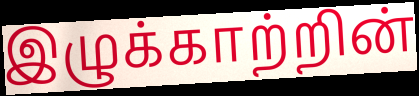
இழுக்காற்றின்